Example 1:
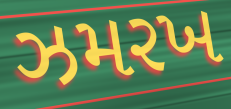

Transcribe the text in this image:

ઝમરખ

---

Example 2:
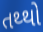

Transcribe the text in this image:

તથ્થો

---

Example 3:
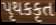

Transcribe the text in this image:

પૃથકકૃત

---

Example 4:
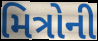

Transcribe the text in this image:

મિત્રોની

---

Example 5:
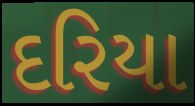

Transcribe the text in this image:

દરિયા